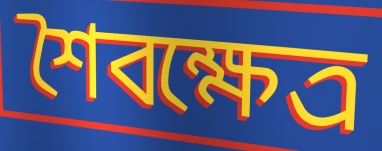
শৈবক্ষেত্র